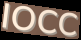
IOCC